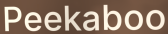
Peekaboo